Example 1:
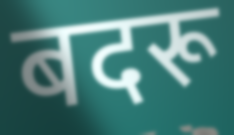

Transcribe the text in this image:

बदरू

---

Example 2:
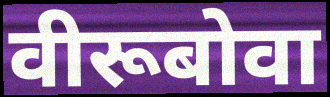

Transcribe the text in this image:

वीरूबोवा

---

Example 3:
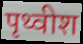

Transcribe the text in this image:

पृथ्वीश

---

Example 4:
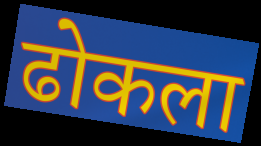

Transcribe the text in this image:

ढोकला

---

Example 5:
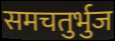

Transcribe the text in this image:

समचतुर्भुज